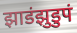
झाडंझुडुपं